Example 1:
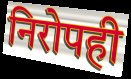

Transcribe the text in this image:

निरोपही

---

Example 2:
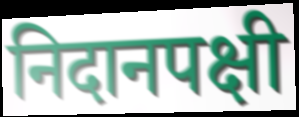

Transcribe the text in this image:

निदानपक्षी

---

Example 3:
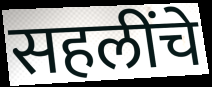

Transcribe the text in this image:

सहलींचे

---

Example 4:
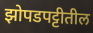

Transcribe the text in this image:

झोपडपट्टीतील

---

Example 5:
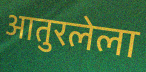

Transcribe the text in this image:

आतुरलेला